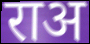
राअ